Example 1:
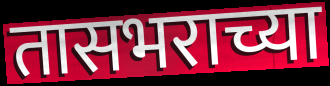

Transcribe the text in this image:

तासभराच्या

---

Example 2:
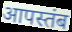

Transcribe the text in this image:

आपस्तंब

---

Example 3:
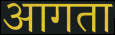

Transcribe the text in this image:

आगता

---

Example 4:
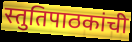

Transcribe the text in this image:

स्तुतिपाठकांची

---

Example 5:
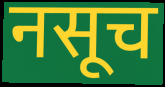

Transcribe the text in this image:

नसूच